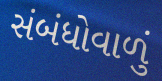
સંબંધોવાળું